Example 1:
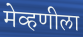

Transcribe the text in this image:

मेव्हणीला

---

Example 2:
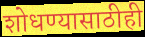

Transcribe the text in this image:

शोधण्यासाठीही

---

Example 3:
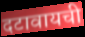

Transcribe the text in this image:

दटावायची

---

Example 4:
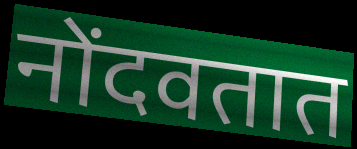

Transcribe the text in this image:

नोंदवतात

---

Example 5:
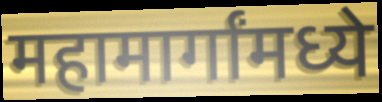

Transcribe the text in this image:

महामार्गांमध्ये